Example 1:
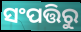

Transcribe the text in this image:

ସଂପତ୍ତିରୁ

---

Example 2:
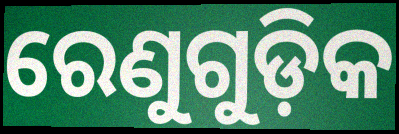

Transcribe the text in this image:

ରେଣୁଗୁଡ଼ିକ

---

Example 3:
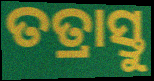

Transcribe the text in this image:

ତତ୍ରାସ୍ତୁ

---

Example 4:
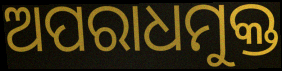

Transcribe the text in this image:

ଅପରାଧମୁକ୍ତ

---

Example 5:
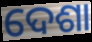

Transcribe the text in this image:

ଦେଶା